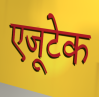
एजूटेक